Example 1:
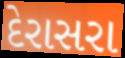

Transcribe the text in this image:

દેરાસરા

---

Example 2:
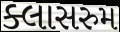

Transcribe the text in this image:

ક્લાસરુમ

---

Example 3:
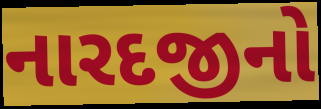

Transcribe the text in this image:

નારદજીનો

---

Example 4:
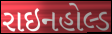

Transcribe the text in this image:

રાઇનહોલ્ડ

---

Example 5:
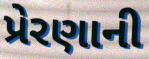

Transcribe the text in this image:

પ્રેરણાની